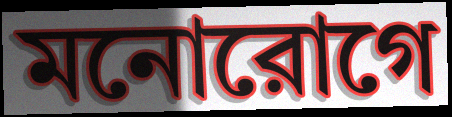
মনোরোগে